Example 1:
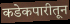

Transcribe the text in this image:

कडेकपारीतून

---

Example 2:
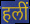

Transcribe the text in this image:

हलीं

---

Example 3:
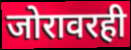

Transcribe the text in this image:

जोरावरही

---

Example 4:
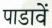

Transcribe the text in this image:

पाडावें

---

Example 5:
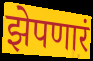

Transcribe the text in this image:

झेपणारं